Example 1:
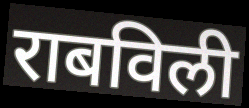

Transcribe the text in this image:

राबविली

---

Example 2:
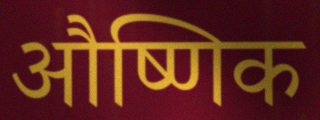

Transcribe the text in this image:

औष्णिक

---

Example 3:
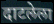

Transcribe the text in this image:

दाटलेला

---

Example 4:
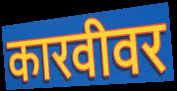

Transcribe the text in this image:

कारवीवर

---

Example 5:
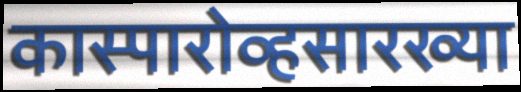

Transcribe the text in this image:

कास्पारोव्हसारख्या